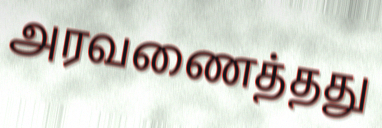
அரவணைத்தது